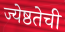
ज्येष्ठतेची